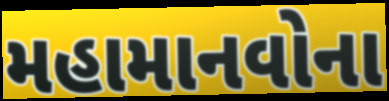
મહામાનવોના